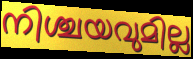
നിശ്ചയവുമില്ല